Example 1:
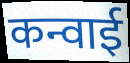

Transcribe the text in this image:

कन्वाई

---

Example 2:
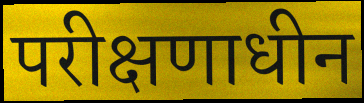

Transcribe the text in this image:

परीक्षणाधीन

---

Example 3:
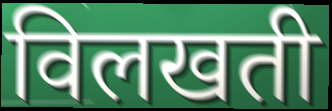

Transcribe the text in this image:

विलखती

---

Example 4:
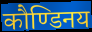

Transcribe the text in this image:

कौण्डिनय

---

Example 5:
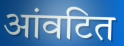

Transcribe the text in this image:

आंवटित